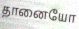
தானையோ